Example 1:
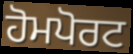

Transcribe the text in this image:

ਹੋਮਪੋਰਟ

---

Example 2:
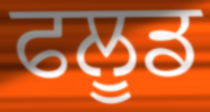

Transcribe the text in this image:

ਫਲੂਡ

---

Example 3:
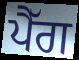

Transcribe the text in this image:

ਪੈੱਗ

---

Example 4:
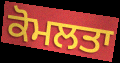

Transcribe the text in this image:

ਕੋਮਲਤਾ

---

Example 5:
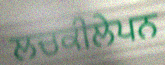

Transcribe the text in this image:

ਲਚਕੀਲੇਪਨ